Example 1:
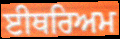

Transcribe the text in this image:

ਈਥਰਿਅਮ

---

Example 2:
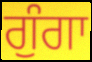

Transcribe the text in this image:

ਗੁੰਗਾ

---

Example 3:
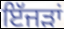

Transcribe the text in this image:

ਇੱਜੜਾਂ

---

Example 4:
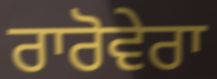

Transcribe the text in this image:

ਰਾਰੋਵੇਰਾ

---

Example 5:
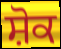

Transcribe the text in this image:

ਸ਼ੋਕ